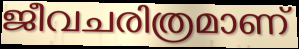
ജീവചരിത്രമാണ്